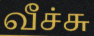
வீச்சு